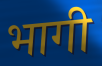
भागी